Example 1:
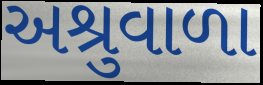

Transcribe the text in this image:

અશ્રુવાળા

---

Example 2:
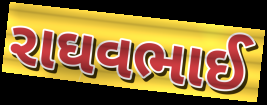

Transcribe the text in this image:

રાઘવભાઈ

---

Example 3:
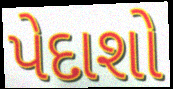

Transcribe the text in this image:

પેદાશો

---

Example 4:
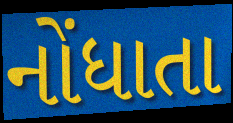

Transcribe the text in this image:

નોંધાતા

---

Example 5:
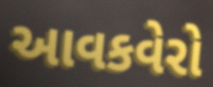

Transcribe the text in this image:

આવકવેરો